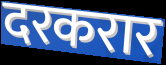
दरकरार